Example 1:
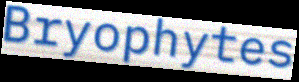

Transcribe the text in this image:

Bryophytes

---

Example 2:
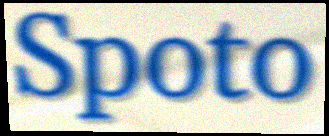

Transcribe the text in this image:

Spoto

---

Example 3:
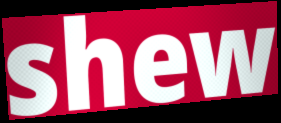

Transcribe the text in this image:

shew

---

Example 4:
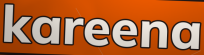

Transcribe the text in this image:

kareena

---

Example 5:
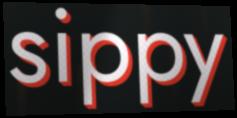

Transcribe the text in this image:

sippy